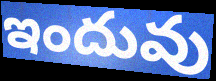
ఇందువు